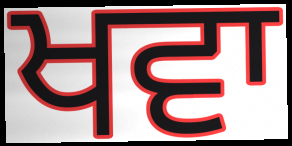
ਖਵਾ